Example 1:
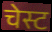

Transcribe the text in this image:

चेस्‍ट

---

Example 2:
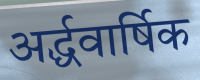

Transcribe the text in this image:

अर्द्धवार्षिक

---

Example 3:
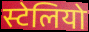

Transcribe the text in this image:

स्टेलियो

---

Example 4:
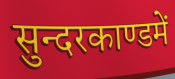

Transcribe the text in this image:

सुन्दरकाण्डमें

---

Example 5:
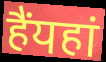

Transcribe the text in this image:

हैंयहां